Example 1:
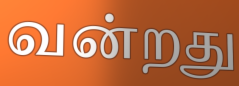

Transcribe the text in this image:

வன்றது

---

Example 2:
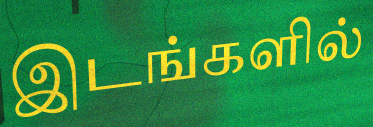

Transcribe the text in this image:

இடங்களில்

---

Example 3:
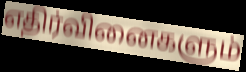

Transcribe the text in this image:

எதிர்வினைகளும்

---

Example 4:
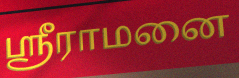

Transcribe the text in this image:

ஸ்ரீராமனை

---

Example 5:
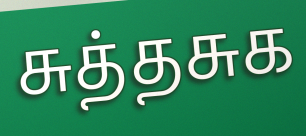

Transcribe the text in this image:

சுத்தசுக